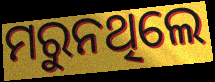
ମରୁନଥିଲେ